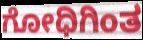
ಗೋಧಿಗಿಂತ